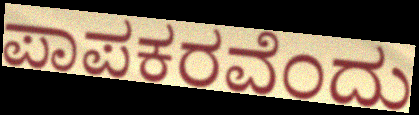
ಪಾಪಕರವೆಂದು